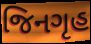
જિનગૃહ